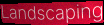
Landscaping